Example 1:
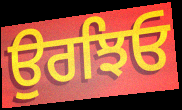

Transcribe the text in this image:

ਉਰਝਿਓ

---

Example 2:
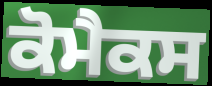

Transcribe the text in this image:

ਕੋਮੈਕਸ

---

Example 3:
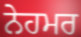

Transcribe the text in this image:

ਨੇਹਮਰ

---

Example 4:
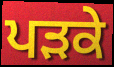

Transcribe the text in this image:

ਪੜਕੇ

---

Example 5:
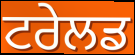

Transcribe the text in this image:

ਟਰੇਲਡ